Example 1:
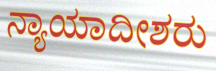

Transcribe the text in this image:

ನ್ಯಾಯಾದೀಶರು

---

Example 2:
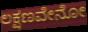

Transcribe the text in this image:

ಲಕ್ಷಣವೇನೋ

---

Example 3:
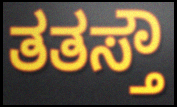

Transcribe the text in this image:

ತತಸ್ತೌ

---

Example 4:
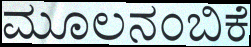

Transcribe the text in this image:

ಮೂಲನಂಬಿಕೆ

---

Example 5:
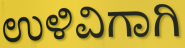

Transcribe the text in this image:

ಉಳಿವಿಗಾಗಿ